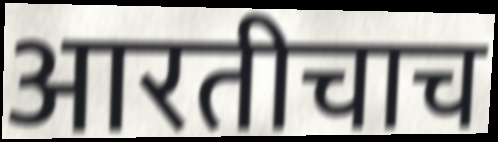
आरतीचाच